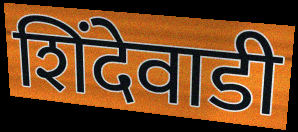
शिंदेवाडी